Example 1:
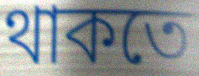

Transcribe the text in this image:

থাকতে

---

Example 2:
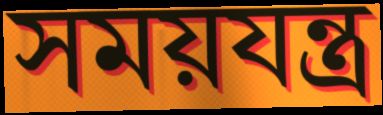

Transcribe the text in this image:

সময়যন্ত্র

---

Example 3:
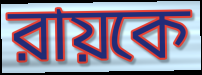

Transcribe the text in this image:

রায়কে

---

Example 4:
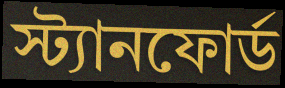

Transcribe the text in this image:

স্ট্যানফোর্ড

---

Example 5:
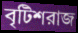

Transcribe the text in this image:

বৃটিশরাজ